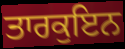
ਤਾਰਕੁਇਨ